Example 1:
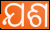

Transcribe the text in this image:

ଯଶ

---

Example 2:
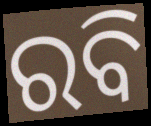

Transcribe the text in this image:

ରବି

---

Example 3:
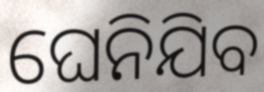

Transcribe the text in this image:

ଘେନିଯିବ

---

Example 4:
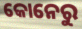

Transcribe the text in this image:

କୋନେରୁ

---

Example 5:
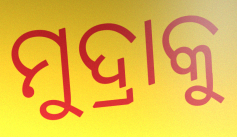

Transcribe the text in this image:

ମୁଦ୍ରାକୁ